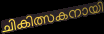
ചികിത്സകനായി